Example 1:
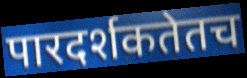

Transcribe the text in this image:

पारदर्शकतेतच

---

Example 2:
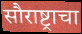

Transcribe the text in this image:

सौराष्ट्राचा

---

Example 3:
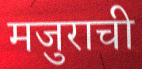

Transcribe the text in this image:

मजुराची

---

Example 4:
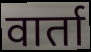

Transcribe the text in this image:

वार्ता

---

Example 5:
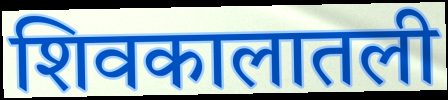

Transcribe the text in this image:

शिवकालातली